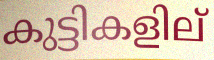
കുട്ടികളില്